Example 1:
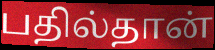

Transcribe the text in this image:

பதில்தான்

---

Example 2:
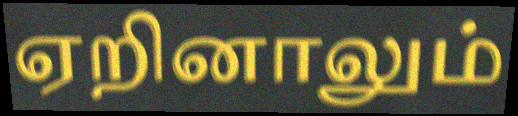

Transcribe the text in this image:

ஏறினாலும்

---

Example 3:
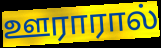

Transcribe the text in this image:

ஊராரால்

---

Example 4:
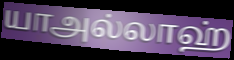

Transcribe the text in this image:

யாஅல்லாஹ்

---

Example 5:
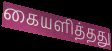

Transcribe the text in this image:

கையளித்தது